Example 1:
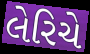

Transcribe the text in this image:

લેરિચે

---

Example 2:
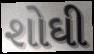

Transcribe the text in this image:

શોઘી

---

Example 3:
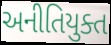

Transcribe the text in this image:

અનીતિયુક્ત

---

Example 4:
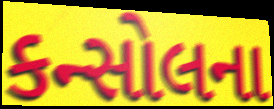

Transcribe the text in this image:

કન્સોલના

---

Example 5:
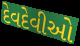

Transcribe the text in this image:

દેવદેવીઓ